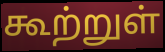
கூற்றுள்